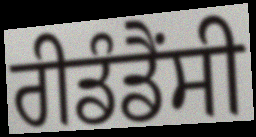
ਰੀਡੰਡੈਂਸੀ